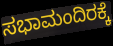
ಸಭಾಮಂದಿರಕ್ಕೆ